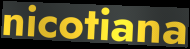
nicotiana